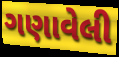
ગણાવેલી